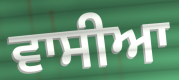
ਵਾਸੀਆ